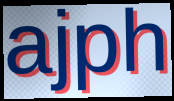
ajph